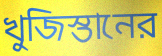
খুজিস্তানের